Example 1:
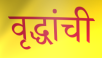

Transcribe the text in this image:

वृद्धांची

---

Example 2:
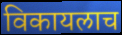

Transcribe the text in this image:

विकायलाच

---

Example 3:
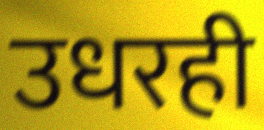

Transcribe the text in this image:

उधरही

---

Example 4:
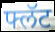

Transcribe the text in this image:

फ्लॅट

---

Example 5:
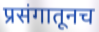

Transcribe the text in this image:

प्रसंगातूनच